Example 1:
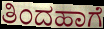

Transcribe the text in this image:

ತಿಂದಹಾಗೆ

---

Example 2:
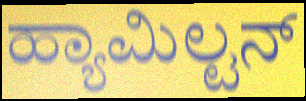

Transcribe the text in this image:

ಹ್ಯಾಮಿಲ್ಟನ್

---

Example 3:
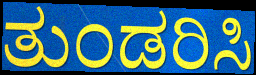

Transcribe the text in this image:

ತುಂಡರಿಸಿ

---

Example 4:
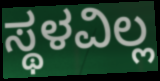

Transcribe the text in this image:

ಸ್ಥಳವಿಲ್ಲ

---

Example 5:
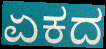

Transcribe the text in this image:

ಏಕದ